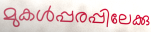
മുകൾപ്പരപ്പിലേക്കു